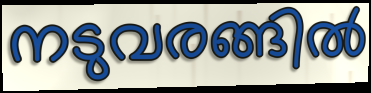
നടുവരങ്ങിൽ